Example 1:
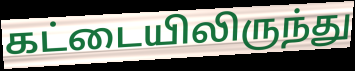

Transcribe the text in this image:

கட்டையிலிருந்து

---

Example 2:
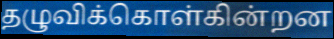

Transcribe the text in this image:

தழுவிக்கொள்கின்றன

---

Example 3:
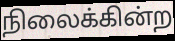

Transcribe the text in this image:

நிலைக்கின்ற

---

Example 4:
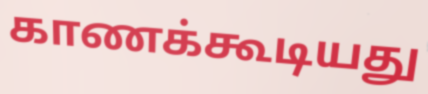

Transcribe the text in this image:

காணக்கூடியது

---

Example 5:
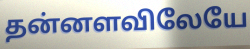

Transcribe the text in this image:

தன்னளவிலேயே